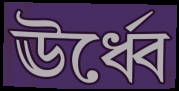
ঊর্ধ্বে